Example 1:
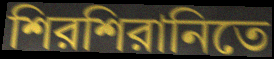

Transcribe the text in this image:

শিরশিরানিতে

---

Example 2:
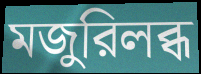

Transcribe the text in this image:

মজুরিলব্ধ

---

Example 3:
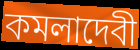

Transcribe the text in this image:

কমলাদেবী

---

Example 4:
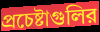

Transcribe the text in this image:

প্রচেষ্টাগুলির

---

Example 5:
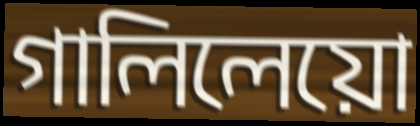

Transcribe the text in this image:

গালিলেয়ো